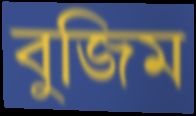
বুজিম